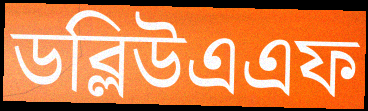
ডব্লিউএএফ